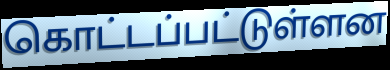
கொட்டப்பட்டுள்ளன